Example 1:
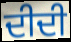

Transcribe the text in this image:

ਦੀਦੀ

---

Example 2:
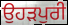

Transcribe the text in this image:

ਉਹੜਪੁਰੀ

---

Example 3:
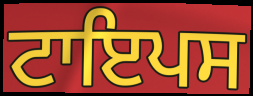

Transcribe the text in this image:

ਟਾਇਪਸ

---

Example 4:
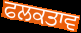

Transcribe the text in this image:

ਫਲਕਤਾਵ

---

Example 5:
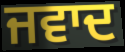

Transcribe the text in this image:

ਜਵਾਦ